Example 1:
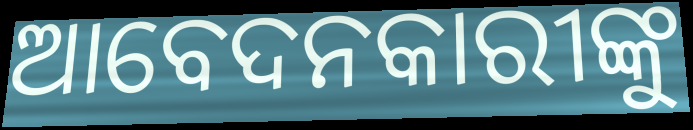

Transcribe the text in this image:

ଆବେଦନକାରୀଙ୍କୁ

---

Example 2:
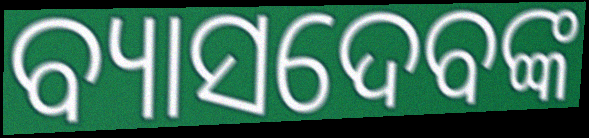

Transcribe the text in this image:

ବ୍ୟାସଦେବଙ୍କ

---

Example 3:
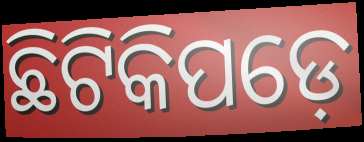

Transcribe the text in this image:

ଛିଟିକିପଡ଼େ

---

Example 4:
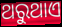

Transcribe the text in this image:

ଥରୁଥାଏ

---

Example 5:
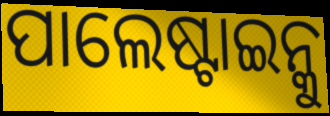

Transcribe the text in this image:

ପାଲେଷ୍ଟାଇନ୍କୁ